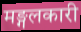
मङ्गलकारी